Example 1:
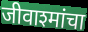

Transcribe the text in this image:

जीवाश्मांचा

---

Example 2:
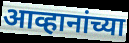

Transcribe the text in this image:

आव्हानांच्या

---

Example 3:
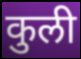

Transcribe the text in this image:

कुली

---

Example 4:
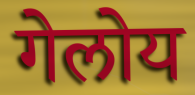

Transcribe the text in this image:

गेलोय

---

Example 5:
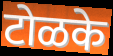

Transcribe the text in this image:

टोळके